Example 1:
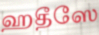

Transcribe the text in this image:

ஹதீஸே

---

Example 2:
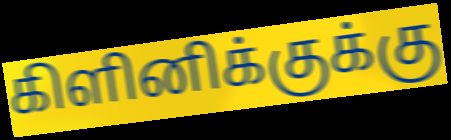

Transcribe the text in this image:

கிளினிக்குக்கு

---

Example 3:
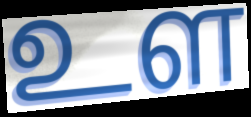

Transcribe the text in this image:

உள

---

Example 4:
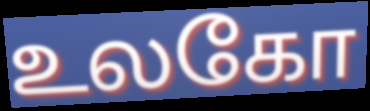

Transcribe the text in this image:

உலகோ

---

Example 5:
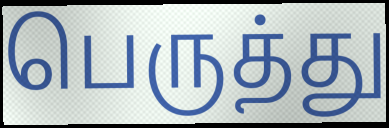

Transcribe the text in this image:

பெருத்து